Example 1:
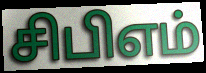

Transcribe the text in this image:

சிபிஎம்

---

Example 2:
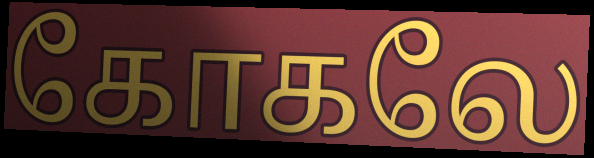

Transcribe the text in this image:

கோகலே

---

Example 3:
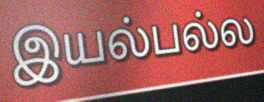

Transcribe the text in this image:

இயல்பல்ல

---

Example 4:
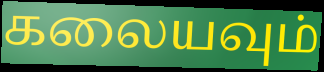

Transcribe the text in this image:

கலையவும்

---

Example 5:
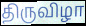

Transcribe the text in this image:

திருவிழா